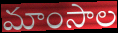
మాంసాల